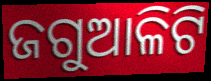
ଜଗୁଆଳିଟି